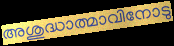
അശുദ്ധാത്മാവിനോടു